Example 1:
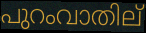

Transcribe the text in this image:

പുറംവാതില്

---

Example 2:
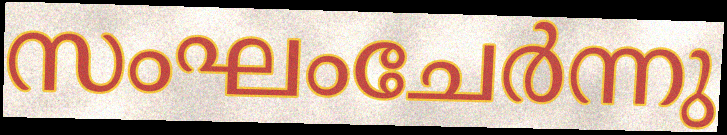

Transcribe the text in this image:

സംഘംചേർന്നു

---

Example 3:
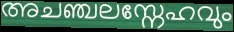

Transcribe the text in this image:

അചഞ്ചലസ്നേഹവും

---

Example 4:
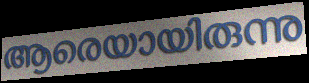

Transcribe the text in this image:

ആരെയായിരുന്നു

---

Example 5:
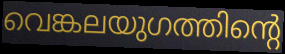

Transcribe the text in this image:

വെങ്കലയുഗത്തിന്റെ